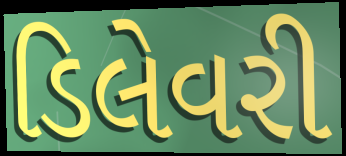
ડિલેવરી